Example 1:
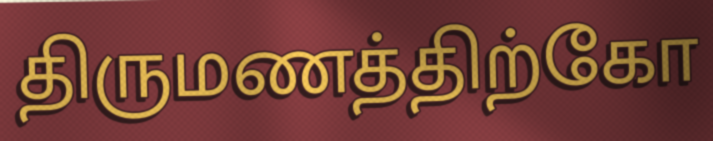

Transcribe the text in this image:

திருமணத்திற்கோ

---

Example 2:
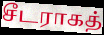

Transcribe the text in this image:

சீடராகத்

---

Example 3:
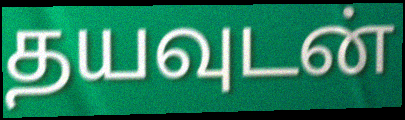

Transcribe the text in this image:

தயவுடன்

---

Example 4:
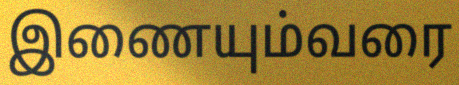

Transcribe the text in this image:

இணையும்வரை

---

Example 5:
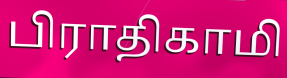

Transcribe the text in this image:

பிராதிகாமி